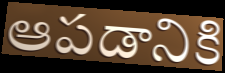
ఆపడానికి